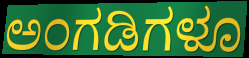
ಅಂಗಡಿಗಳೂ